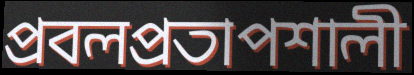
প্রবলপ্রতাপশালী